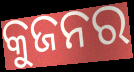
କୁଜନର